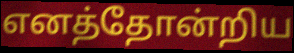
எனத்தோன்றிய